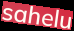
sahelu